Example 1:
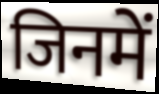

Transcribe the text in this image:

जिनमें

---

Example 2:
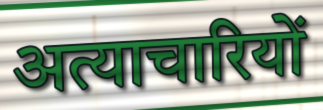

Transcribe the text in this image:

अत्याचारियों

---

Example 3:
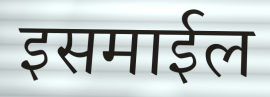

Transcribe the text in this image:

इसमाईल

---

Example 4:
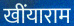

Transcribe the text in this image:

खींयाराम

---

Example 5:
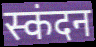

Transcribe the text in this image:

स्कंदन